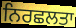
ਨਿਰਛਲਤਾ